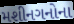
મશીનગનોના